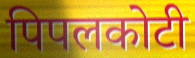
पिपलकोटी